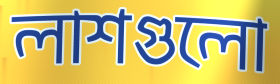
লাশগুলো